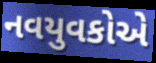
નવયુવકોએ